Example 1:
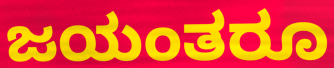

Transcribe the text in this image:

ಜಯಂತರೂ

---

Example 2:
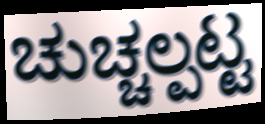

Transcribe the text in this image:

ಚುಚ್ಚಲ್ಪಟ್ಟ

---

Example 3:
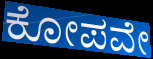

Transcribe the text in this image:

ಕೋಪವೇ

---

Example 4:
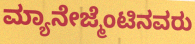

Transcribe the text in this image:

ಮ್ಯಾನೇಜ್ಮೆಂಟಿನವರು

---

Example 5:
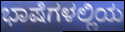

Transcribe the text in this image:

ಭಾಷೆಗಳಲ್ಲಿಯ